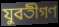
যুবতীগণ